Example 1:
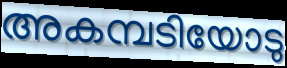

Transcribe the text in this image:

അകമ്പടിയോടു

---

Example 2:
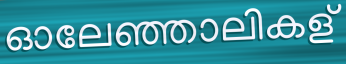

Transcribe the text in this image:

ഓലേഞ്ഞാലികള്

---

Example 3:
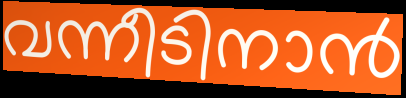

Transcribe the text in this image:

വന്നീടിനാൻ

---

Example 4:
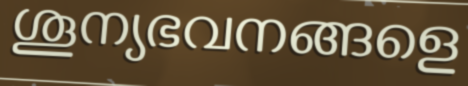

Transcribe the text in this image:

ശൂന്യഭവനങ്ങളെ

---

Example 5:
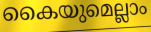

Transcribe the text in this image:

കൈയുമെല്ലാം